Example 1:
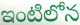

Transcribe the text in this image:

ఇంటిలోన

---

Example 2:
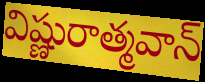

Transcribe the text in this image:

విష్ణురాత్మవాన్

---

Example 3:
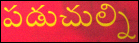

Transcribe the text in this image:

పడుచుల్ని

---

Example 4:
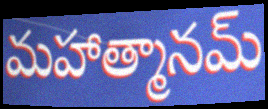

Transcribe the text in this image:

మహాత్మానమ్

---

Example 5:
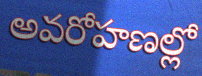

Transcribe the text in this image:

అవరోహణల్లో